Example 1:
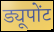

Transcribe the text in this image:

ड्यूपोंट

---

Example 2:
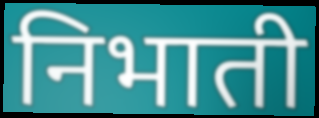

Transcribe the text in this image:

निभाती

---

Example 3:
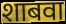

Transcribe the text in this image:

शाबवा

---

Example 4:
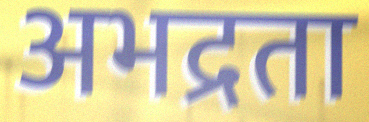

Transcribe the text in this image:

अभद्रता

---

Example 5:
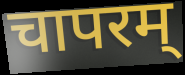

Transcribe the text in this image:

चापरम्